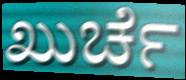
ಖುರ್ಚೆ